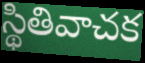
స్థితివాచక